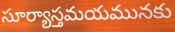
సూర్యాస్తమయమునకు